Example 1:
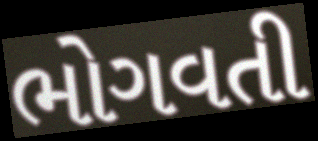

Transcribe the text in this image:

ભોગવતી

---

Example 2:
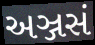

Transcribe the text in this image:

અઞ્જસં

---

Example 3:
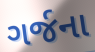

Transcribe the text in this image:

ગર્જના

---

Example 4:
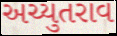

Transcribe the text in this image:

અચ્યુતરાવ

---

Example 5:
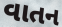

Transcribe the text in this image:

વાતન